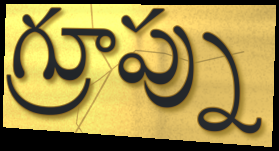
గ్రూప్ను